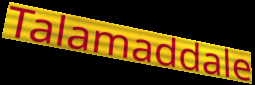
Talamaddale